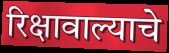
रिक्षावाल्याचे